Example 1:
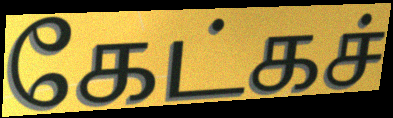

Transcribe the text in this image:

கேட்கச்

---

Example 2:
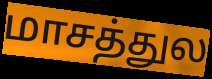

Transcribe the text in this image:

மாசத்துல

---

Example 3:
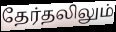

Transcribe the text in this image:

தேர்தலிலும்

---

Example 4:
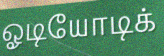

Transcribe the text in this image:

ஓடியோடிக்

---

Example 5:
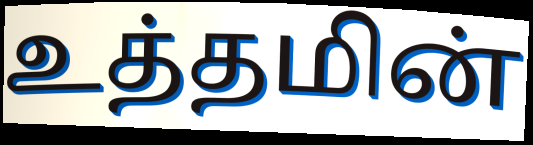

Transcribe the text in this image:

உத்தமின்